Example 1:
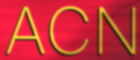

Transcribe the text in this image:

ACN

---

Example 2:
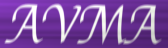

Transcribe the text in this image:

AVMA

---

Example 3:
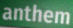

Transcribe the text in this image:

anthem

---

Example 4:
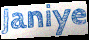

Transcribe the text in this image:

Janiye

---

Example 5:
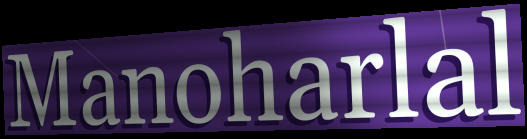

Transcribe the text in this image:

Manoharlal